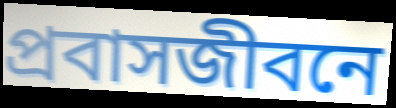
প্রবাসজীবনে